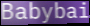
Babybai